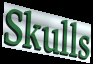
Skulls